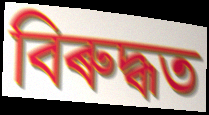
বিৰুদ্ধত